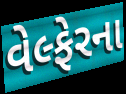
વેલ્ફેરના